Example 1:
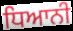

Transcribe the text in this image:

ਧਿਆਨੀ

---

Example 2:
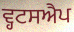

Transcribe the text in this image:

ਵ੍ਹਟਸਐਪ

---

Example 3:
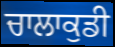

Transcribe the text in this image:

ਚਾਲਾਕੁਡੀ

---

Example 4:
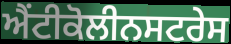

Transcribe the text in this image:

ਐਂਟੀਕੋਲੀਨਸਟਰੇਸ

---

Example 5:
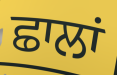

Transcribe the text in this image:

ਛਾਲਾਂ